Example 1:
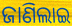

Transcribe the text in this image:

ଜାଣିଲାଇ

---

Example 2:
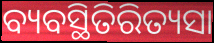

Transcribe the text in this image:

ବ୍ୟବସ୍ଥିତିରିତ୍ୟସା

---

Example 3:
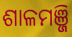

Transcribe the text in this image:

ଶାଳମଞ୍ଜି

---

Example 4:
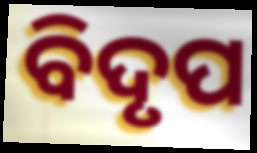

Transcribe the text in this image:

ବିଦୃପ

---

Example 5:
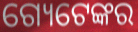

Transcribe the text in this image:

ଗ୍ୟେଟେଙ୍କର